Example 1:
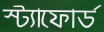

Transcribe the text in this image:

স্ট্যাফোর্ড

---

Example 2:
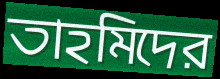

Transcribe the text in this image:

তাহমিদের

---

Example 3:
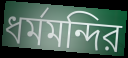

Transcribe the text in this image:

ধর্মমন্দির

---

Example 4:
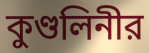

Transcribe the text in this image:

কুণ্ডলিনীর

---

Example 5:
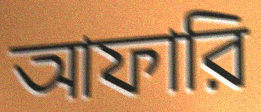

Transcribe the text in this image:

আফারি